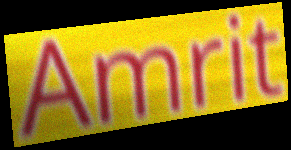
Amrit